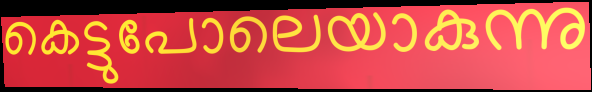
കെട്ടുപോലെയാകുന്നു